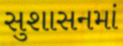
સુશાસનમાં